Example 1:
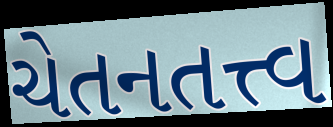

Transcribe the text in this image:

ચેતનતત્ત્વ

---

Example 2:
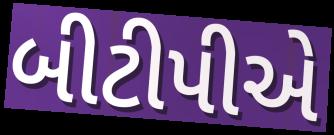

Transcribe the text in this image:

બીટીપીએ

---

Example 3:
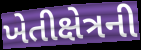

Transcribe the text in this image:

ખેતીક્ષેત્રની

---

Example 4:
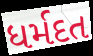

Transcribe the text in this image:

ધર્મદત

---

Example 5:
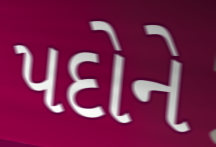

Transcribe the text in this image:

પદોને